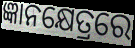
ଜ୍ଞାନକ୍ଷେତ୍ରରେ